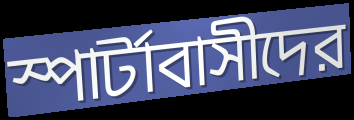
স্পার্টাবাসীদের